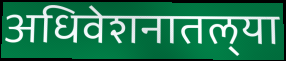
अधिवेशनातल्या